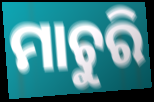
ମାଚୁରି